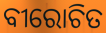
ବୀରୋଚିତ